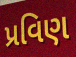
પ્રવિણ